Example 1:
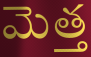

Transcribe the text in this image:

మెత్త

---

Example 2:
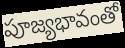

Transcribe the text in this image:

పూజ్యభావంతో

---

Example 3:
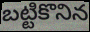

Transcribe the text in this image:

బట్టికొనిన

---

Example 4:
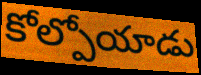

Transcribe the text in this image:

కోల్పోయాడు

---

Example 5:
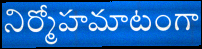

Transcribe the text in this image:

నిర్మోహమాటంగా